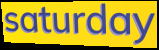
saturday